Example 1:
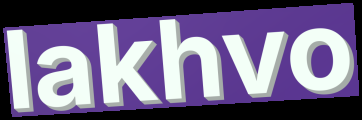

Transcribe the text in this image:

lakhvo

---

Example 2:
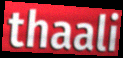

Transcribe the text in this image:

thaali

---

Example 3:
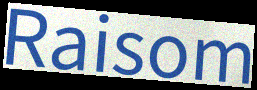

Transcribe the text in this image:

Raisom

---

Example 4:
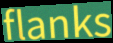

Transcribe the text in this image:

flanks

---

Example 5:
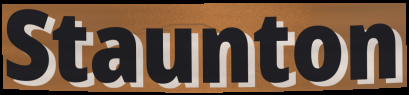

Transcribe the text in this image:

Staunton